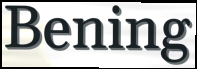
Bening